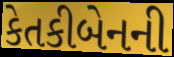
કેતકીબેનની